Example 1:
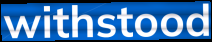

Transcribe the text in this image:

withstood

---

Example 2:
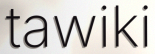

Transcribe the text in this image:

tawiki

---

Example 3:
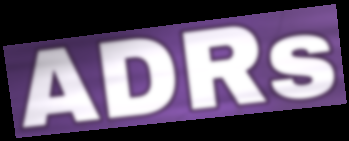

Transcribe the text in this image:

ADRs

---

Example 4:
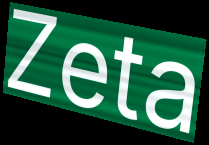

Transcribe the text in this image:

Zeta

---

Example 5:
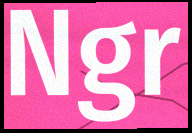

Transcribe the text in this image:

Ngr